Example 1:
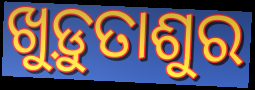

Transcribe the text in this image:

ଖୁଡ଼ୁତାଶୁର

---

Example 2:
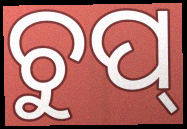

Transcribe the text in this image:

ଚୁପ୍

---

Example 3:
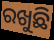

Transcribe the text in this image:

ରଖୁଛି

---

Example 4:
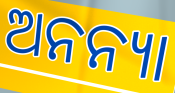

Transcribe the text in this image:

ଅନନ୍ୟା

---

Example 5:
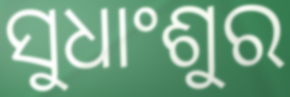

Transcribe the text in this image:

ସୁଧାଂଶୁର